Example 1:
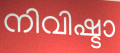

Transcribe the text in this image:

നിവിഷ്ടാ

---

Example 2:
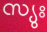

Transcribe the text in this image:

സ്യുഃ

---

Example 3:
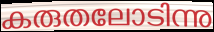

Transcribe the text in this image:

കരുതലോടിന്നു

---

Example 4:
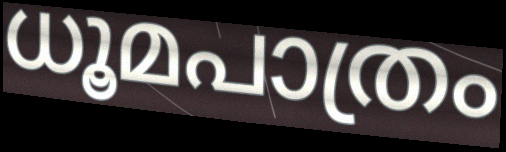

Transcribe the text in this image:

ധൂമപാത്രം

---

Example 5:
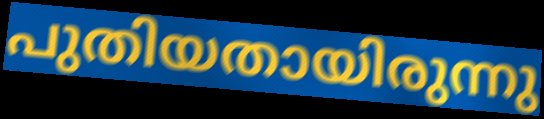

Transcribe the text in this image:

പുതിയതായിരുന്നു